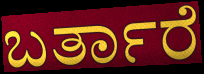
ಬರ್ತಾರೆ